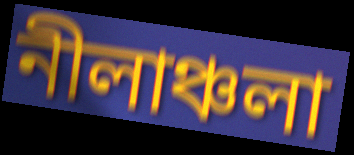
নীলাঞ্চলা